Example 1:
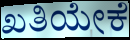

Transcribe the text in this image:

ಖತಿಯೇಕೆ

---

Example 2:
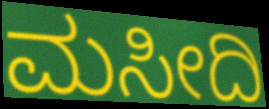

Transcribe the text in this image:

ಮಸೀದಿ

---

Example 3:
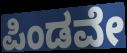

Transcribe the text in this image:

ಪಿಂಡವೇ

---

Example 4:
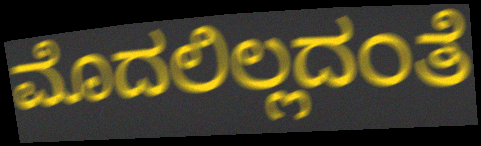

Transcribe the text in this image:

ಮೊದಲಿಲ್ಲದಂತೆ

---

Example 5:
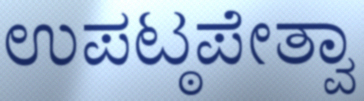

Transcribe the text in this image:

ಉಪಟ್ಠಪೇತ್ವಾ